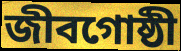
জীবগোষ্ঠী